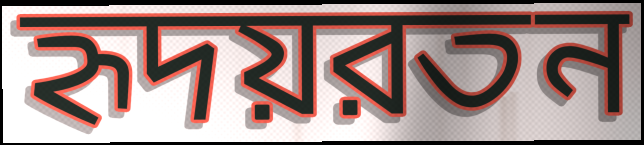
হৃদয়রতন